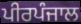
ਪੀਰਪੰਜਾਲ